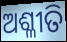
ଅଶ୍ଳୀତି